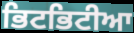
ਭਿਟਭਿਟੀਆ